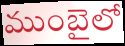
ముంబైలో